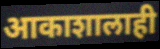
आकाशालाही